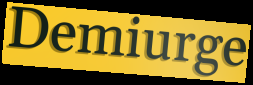
Demiurge